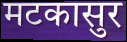
मटकासुर